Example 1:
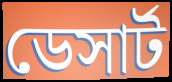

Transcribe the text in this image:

ডেসার্ট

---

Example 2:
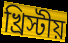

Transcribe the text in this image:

খ্রিস্টীয়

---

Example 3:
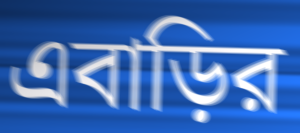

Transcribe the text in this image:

এবাড়ির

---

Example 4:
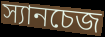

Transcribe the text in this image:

স্যানচেজ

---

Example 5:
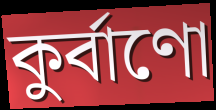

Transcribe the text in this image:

কুর্বাণো